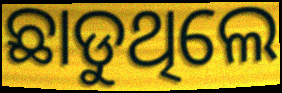
ଛାଡୁଥିଲେ